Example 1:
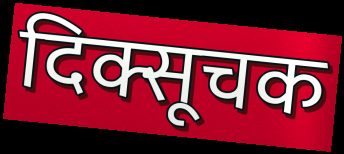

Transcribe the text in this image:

दिक्सूचक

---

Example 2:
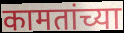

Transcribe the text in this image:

कामतांच्या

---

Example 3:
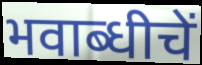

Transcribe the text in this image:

भवाब्धीचें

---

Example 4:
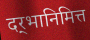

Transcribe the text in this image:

दर्भानिमित्त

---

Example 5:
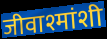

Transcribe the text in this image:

जीवाश्मांशी